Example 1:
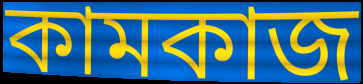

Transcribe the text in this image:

কামকাজ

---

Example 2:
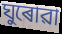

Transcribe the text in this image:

ঘুৰোৱা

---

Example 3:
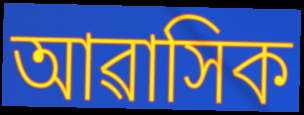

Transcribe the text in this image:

আৱাসিক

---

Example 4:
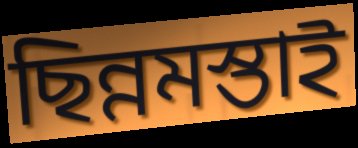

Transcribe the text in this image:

ছিন্নমস্তাই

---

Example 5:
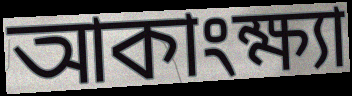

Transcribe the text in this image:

আকাংক্ষ্যা